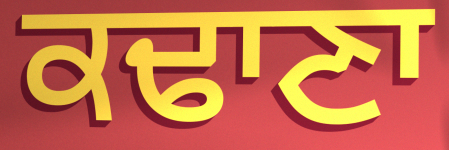
ਕਢਾਣਾ